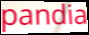
pandia